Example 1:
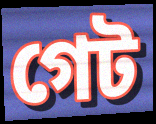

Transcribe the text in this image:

গেট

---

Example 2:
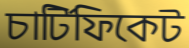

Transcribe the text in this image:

চাৰ্টিফিকেট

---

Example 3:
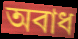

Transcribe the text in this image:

অবাধ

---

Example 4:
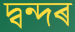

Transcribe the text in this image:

দ্বন্দৰ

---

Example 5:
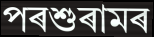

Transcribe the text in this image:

পৰশুৰামৰ